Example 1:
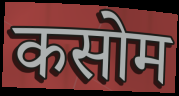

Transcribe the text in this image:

कसोम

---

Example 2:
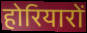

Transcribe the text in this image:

होरियारों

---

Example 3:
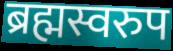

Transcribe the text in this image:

ब्रह्मस्वरुप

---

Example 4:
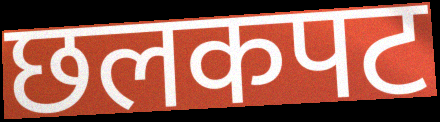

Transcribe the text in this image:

छलकपट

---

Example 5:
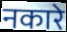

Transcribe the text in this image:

नकारे